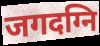
जगदग्नि